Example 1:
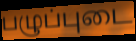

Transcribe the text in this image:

பழுப்புடை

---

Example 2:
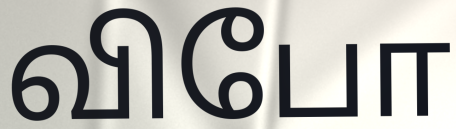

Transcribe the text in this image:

விபோ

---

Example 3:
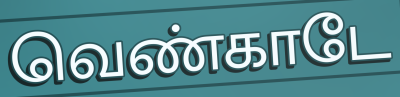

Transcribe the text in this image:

வெண்காடே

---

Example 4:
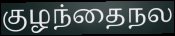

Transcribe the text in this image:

குழந்தைநல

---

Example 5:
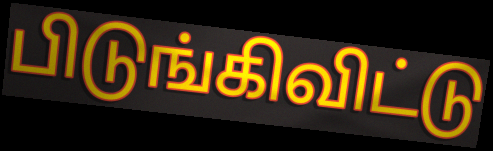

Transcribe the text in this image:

பிடுங்கிவிட்டு